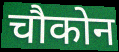
चौकोन